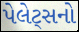
પેલેટ્સનો